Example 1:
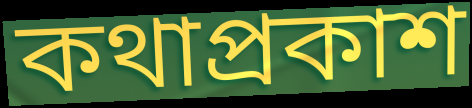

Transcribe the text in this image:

কথাপ্রকাশ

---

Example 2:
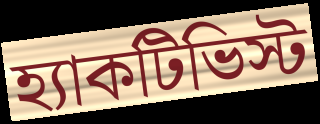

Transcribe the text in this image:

হ্যাকটিভিস্ট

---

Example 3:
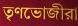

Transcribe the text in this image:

তৃণভোজীরা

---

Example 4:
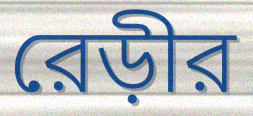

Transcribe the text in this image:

রেড়ীর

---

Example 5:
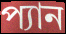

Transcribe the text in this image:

প্যান